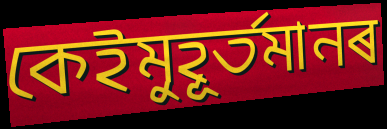
কেইমুহূৰ্তমানৰ